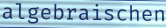
algebraischen